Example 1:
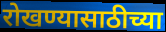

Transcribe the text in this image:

रोखण्यासाठीच्या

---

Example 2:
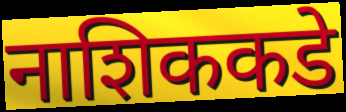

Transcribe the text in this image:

नाशिककडे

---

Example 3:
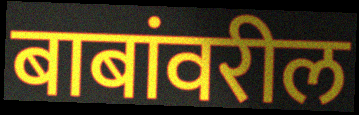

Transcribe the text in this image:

बाबांवरील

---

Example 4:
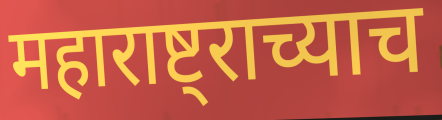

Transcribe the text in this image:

महाराष्ट्राच्याच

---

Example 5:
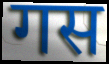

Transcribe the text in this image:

गस